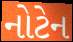
નોટેન